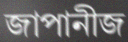
জাপানীজ